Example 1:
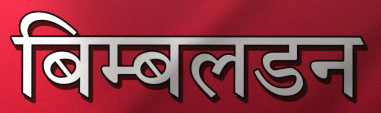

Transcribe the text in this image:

बिम्बलडन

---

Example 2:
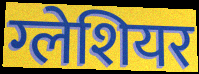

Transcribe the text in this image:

ग्‍लेशियर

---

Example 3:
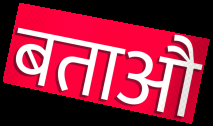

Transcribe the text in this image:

बताऔ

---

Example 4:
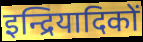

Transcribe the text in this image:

इन्द्रियादिकों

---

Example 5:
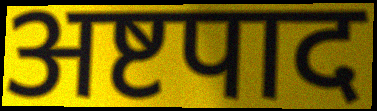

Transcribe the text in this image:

अष्टपाद